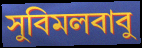
সুবিমলবাবু